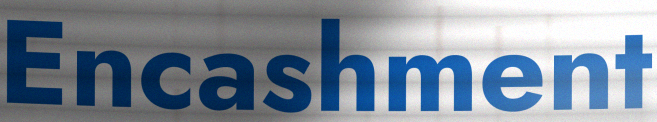
Encashment